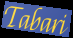
Tabari